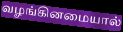
வழங்கினமையால்